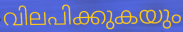
വിലപിക്കുകയും